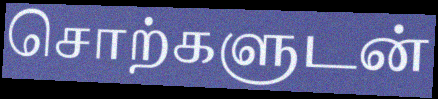
சொற்களுடன்